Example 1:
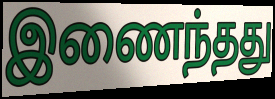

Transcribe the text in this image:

இணைந்தது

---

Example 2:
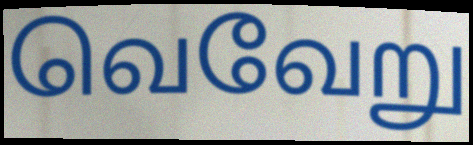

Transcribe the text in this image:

வெவேறு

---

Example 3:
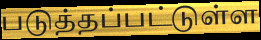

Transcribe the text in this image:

படுத்தப்பட்டுள்ள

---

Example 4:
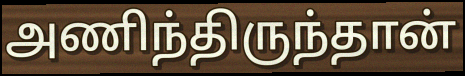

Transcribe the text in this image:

அணிந்திருந்தான்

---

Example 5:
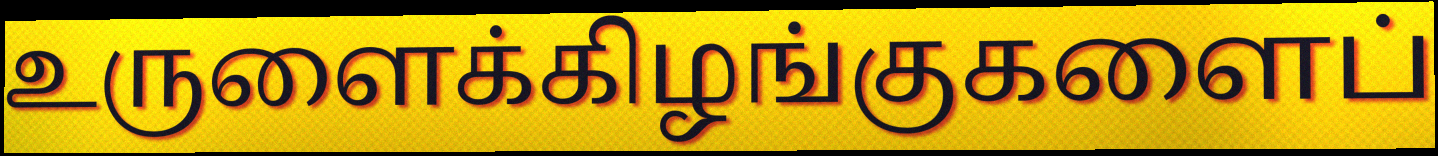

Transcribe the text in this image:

உருளைக்கிழங்குகளைப்